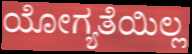
ಯೋಗ್ಯತೆಯಿಲ್ಲ